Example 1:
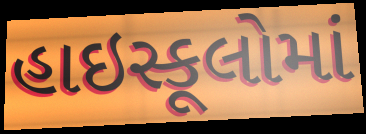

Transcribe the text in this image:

હાઇસ્કૂલોમાં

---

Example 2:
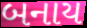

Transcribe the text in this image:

બનાય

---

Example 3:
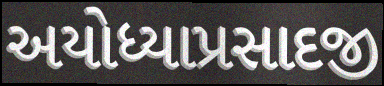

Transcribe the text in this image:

અયોધ્યાપ્રસાદજી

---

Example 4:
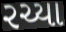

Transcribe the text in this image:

રચ્યા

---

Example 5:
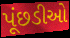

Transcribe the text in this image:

પૂંછડીઓ